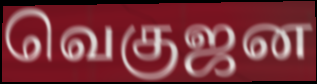
வெகுஜன